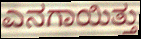
ಎನಗಾಯಿತ್ತು